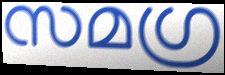
സമഗ്ര